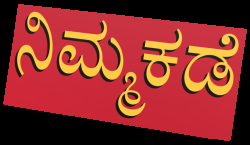
ನಿಮ್ಮಕಡೆ